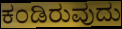
ಕಂಡಿರುವುದು